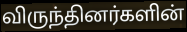
விருந்தினர்களின்